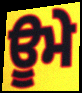
ਊਮੇ